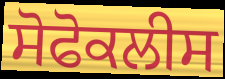
ਸੋਫੋਕਲੀਸ